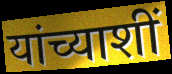
यांच्याशीं